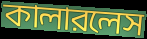
কালারলেস